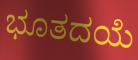
ಭೂತದಯೆ